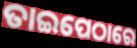
ତାଇପେଠାରେ